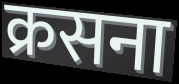
क्रसना